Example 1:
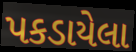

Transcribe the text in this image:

પકડાયેલા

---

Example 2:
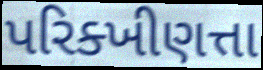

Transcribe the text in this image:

પરિક્ખીણત્તા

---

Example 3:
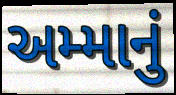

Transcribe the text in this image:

અમ્માનું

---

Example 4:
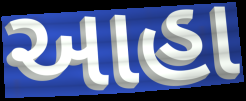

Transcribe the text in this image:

આહા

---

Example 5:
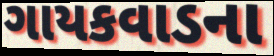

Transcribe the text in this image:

ગાયકવાડના